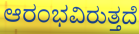
ಆರಂಭವಿರುತ್ತದೆ